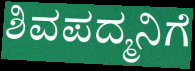
ಶಿವಪದ್ಮನಿಗೆ